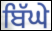
ਬਿੱਘੇ